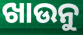
ଖାଉନୁ